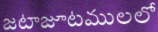
జటాజూటములలో